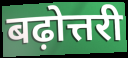
बढ़ोत्तरी